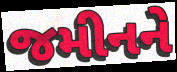
જમીનને